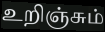
உறிஞ்சும்